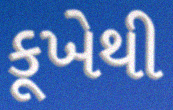
કૂખેથી